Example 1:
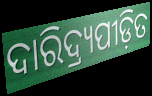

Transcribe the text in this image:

ଦାରିଦ୍ର୍ୟପୀଡ଼ିତ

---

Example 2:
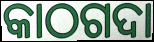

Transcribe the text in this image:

କାଠଗଦା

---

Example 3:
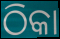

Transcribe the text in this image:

ଠିକା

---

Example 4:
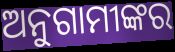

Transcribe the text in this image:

ଅନୁଗାମୀଙ୍କର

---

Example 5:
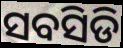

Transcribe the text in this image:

ସବସିଡି